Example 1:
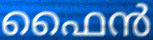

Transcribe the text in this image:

ഫൈൻ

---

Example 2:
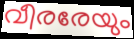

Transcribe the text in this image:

വീരരേയും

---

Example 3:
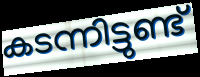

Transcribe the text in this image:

കടന്നിട്ടുണ്ട്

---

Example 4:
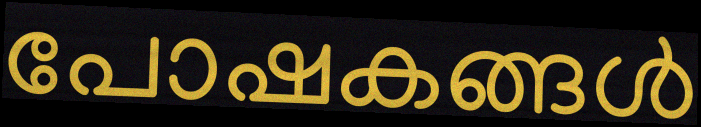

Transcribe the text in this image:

പോഷകങ്ങൾ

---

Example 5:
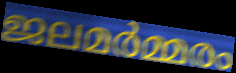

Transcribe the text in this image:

ജലമർമ്മരം